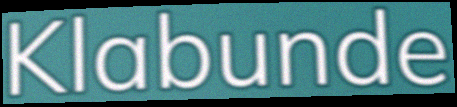
Klabunde